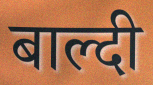
बाल्दी